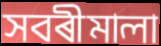
সবৰীমালা